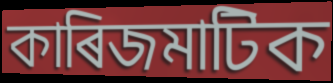
কাৰিজমাটিক